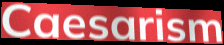
Caesarism